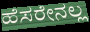
ಹೆಸರೇನಲ್ಲ